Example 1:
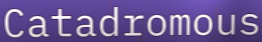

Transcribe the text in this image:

Catadromous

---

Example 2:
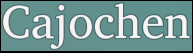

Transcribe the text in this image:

Cajochen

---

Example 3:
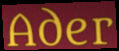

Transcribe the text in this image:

Ader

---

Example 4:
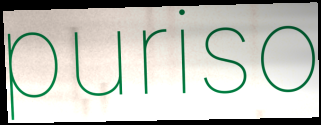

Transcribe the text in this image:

puriso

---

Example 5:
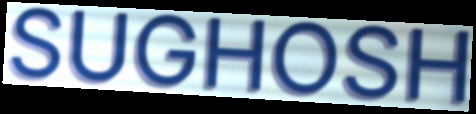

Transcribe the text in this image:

SUGHOSH